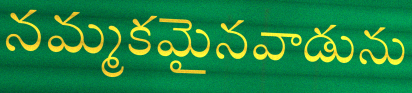
నమ్మకమైనవాడును